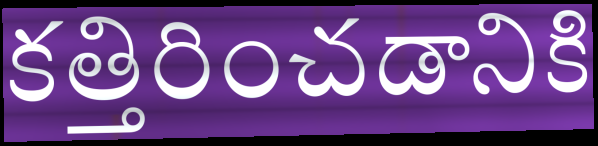
కత్తిరించడానికి